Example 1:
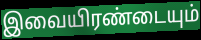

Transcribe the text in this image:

இவையிரண்டையும்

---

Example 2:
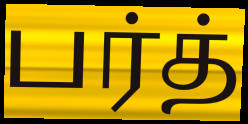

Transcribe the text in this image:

பர்த்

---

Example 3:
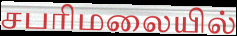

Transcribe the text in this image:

சபரிமலையில்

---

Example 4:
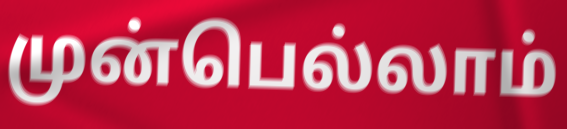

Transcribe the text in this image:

முன்பெல்லாம்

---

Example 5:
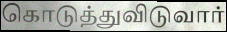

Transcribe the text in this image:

கொடுத்துவிடுவார்